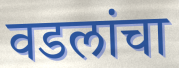
वडलांचा